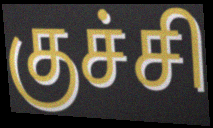
குச்சி